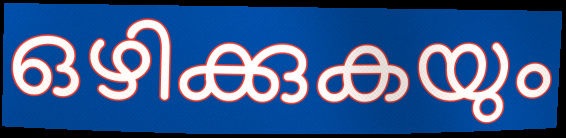
ഒഴിക്കുകയും